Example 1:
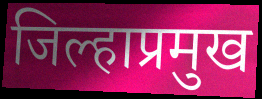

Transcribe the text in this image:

जिल्हाप्रमुख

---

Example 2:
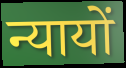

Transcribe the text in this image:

न्यायों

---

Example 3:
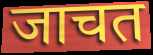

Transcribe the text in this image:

जाचत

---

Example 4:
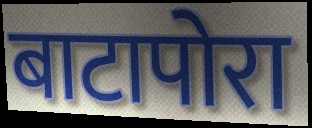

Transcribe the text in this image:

बाटापोरा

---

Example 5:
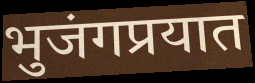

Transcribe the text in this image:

भुजंगप्रयात